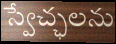
స్వేచ్ఛలను